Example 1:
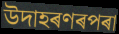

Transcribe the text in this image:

উদাহৰণৰপৰা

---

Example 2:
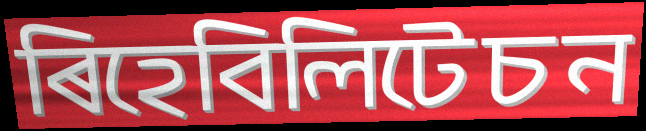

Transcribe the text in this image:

ৰিহেবিলিটেচন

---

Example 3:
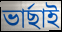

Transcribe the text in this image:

ভাৰ্ছাই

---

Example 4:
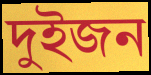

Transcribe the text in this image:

দুইজন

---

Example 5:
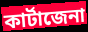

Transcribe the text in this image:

কাৰ্টাজেনা